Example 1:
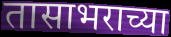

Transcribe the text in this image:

तासाभराच्या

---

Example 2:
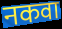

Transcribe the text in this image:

नकवा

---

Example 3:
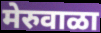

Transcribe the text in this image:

मेरुवाळा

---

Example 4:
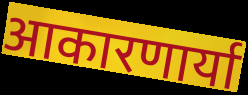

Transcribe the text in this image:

आकारणार्या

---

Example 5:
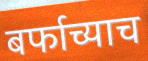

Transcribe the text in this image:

बर्फाच्याच